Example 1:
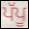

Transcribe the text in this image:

ਪੱਪੂ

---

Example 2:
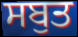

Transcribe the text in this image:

ਸਬੁਤ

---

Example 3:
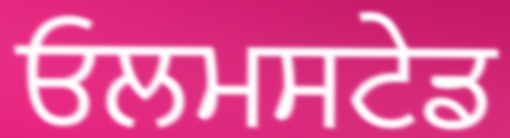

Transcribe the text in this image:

ਓਲਮਸਟੇਡ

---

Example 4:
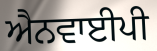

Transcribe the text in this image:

ਐਨਵਾਈਪੀ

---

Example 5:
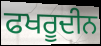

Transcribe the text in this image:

ਫਖਰੂਦੀਨ